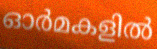
ഓർമകളിൽ